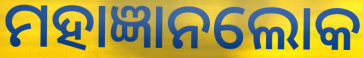
ମହାଜ୍ଞାନଲୋକ